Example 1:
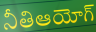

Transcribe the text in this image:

నీతిఆయోగ్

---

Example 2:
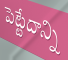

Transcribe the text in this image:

పెట్టేదాన్ని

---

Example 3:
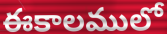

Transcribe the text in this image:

ఈకాలములో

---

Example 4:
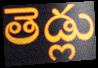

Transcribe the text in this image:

తెడ్లు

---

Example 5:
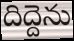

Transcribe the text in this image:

దిద్దెను